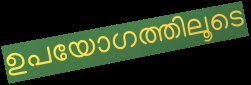
ഉപയോഗത്തിലൂടെ